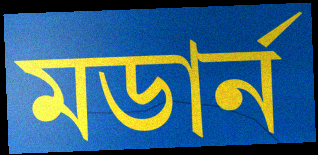
মডার্ন